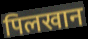
पिलखान